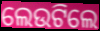
ଲେଉଟିଲେ